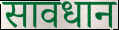
सावधान